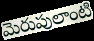
మెరుపులాంటి